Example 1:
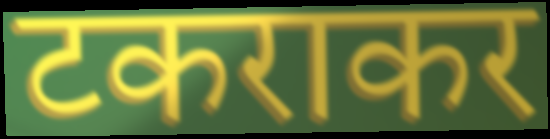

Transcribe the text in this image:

टकराकर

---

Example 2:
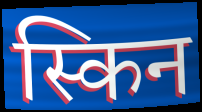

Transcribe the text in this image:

स्किन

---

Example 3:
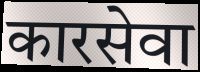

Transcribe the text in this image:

कारसेवा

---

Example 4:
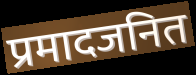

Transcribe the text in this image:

प्रमादजनित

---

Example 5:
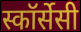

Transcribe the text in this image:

स्कॉर्सेसी